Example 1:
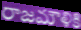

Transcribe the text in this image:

రాజమౌళికి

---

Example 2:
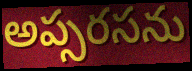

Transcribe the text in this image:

అప్సరసను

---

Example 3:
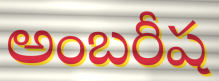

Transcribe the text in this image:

అంబరీష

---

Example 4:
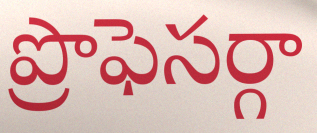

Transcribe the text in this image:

ప్రొఫెసర్గా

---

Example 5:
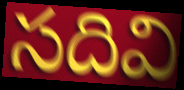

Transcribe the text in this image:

సదివి